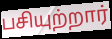
பசியுற்றார்